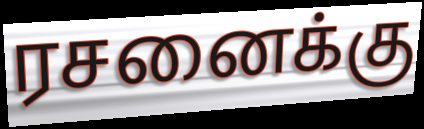
ரசனைக்கு